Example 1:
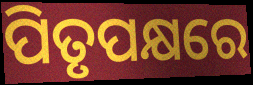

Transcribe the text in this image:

ପିତୃପକ୍ଷରେ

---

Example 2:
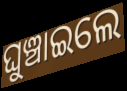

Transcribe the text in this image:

ଘୁଞ୍ଚାଇଲେ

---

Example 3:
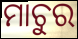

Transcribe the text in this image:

ମାଚୁର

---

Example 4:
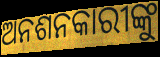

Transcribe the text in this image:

ଅନଶନକାରୀଙ୍କୁ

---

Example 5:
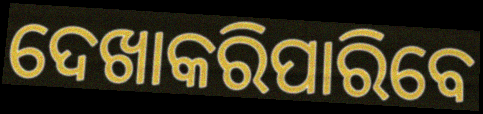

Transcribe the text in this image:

ଦେଖାକରିପାରିବେ